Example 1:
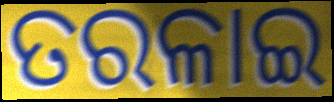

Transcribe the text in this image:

ତରଳାଇ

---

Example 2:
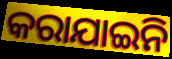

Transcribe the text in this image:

କରାଯାଇନି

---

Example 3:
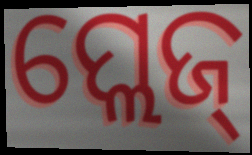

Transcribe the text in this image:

ପ୍ଲେଜ୍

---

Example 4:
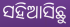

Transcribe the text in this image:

ସହିଆସିଛୁ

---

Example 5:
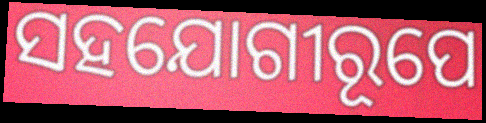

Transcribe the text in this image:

ସହଯୋଗୀରୂପେ